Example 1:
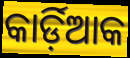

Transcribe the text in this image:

କାର୍ଡ଼ିଆକ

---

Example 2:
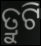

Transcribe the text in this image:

ତ୍ରୁଟି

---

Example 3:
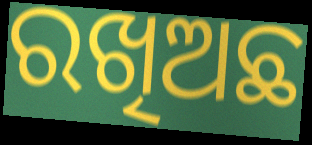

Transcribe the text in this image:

ରଖିଅଛ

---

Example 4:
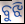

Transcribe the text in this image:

ବୁଝି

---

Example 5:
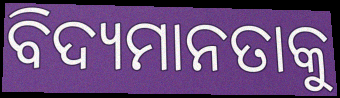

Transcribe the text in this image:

ବିଦ୍ୟମାନତାକୁ